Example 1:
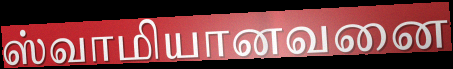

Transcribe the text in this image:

ஸ்வாமியானவனை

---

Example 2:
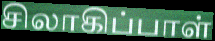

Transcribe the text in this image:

சிலாகிப்பாள்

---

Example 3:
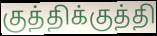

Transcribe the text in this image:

குத்திக்குத்தி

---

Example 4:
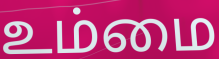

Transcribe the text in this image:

உம்மை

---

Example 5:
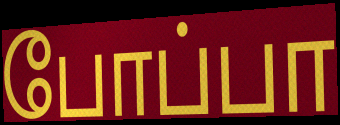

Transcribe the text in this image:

போப்பா